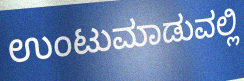
ಉಂಟುಮಾಡುವಲ್ಲಿ